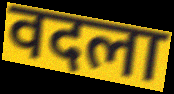
वदला